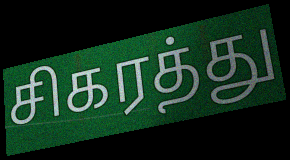
சிகரத்து